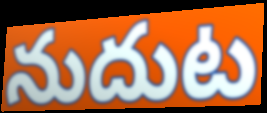
నుదుట